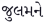
જુલમને